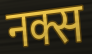
नक्स